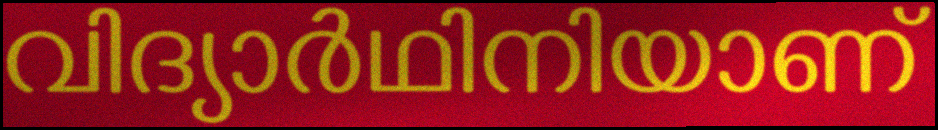
വിദ്യാർഥിനിയാണ്